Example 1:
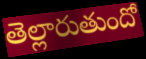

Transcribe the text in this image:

తెల్లారుతుందో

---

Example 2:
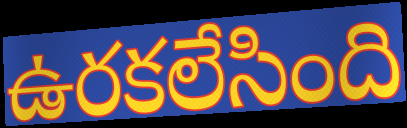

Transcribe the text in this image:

ఉరకలేసింది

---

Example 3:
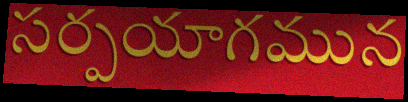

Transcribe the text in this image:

సర్పయాగమున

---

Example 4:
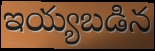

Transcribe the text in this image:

ఇయ్యబడిన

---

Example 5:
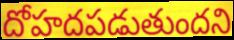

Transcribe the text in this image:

దోహదపడుతుందని